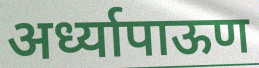
अर्ध्यापाऊण